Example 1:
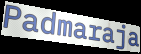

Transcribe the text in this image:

Padmaraja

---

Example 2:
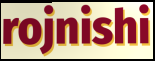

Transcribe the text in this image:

rojnishi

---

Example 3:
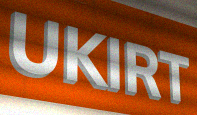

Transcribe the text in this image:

UKIRT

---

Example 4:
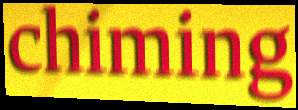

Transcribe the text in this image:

chiming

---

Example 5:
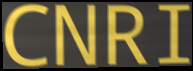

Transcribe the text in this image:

CNRI